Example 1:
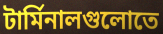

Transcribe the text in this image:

টার্মিনালগুলোতে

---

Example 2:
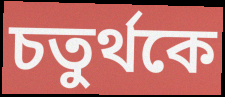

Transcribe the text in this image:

চতুর্থকে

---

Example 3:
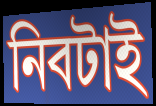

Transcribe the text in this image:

নিবটাই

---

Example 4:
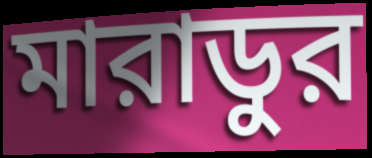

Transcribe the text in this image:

মারাডুর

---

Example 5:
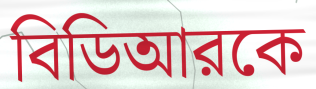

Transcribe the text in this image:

বিডিআরকে